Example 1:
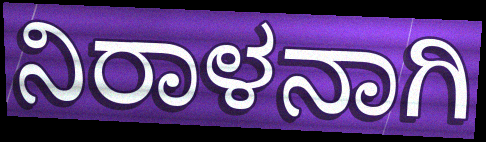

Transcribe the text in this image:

ನಿರಾಳನಾಗಿ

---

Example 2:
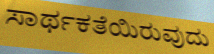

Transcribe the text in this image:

ಸಾರ್ಥಕತೆಯಿರುವುದು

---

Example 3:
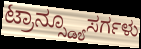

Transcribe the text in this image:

ಟ್ರಾನ್ಸ್ಡ್ಯೂಸರ್ಗಳು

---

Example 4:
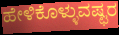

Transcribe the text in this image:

ಹೇಳಿಕೊಳ್ಳುವಷ್ಟರ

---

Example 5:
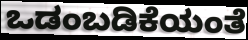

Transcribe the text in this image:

ಒಡಂಬಡಿಕೆಯಂತೆ